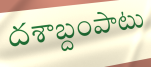
దశాబ్దంపాటు